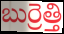
బుర్రెత్తి